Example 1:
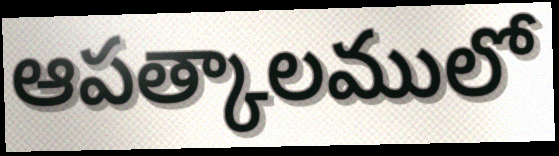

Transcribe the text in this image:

ఆపత్కాలములో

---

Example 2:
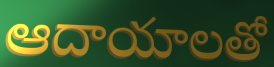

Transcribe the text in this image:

ఆదాయాలతో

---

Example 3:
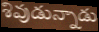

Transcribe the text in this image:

శివుడున్నాడు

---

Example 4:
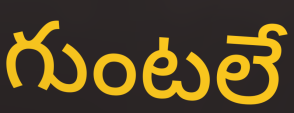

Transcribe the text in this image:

గుంటలే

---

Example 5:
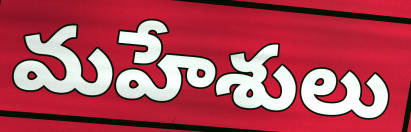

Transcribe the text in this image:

మహేశులు